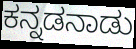
ಕನ್ನಡನಾಡು